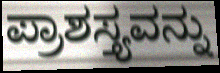
ಪ್ರಾಶಸ್ತ್ಯವನ್ನು